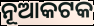
ନୂଆକଟକ